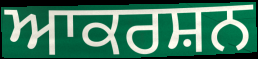
ਆਕਰਸ਼ਨ